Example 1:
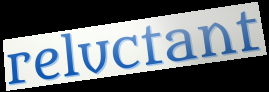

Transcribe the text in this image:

reluctant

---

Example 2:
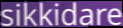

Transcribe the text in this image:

sikkidare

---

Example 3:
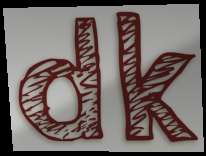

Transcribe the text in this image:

dk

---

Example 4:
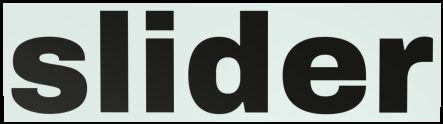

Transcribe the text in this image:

slider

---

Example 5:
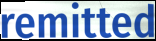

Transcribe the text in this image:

remitted